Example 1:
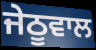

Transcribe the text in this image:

ਜੇਠੂਵਾਲ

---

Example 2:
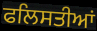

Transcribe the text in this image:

ਫਲਿਸਤੀਆਂ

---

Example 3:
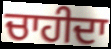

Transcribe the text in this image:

ਚਾਹੀਦਾ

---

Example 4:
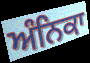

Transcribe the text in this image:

ਅੰਨਿਕਾ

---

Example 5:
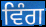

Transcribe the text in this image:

ਵਿੰਗ